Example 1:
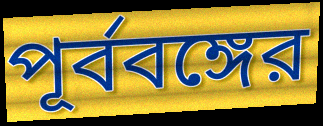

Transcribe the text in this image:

পূর্ববঙ্গের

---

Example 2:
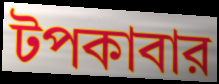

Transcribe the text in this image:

টপকাবার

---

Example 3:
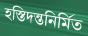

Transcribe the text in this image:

হস্তিদন্তনির্মিত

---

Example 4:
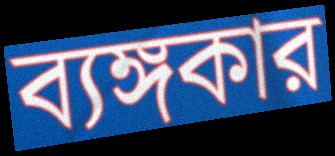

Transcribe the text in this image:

ব্যঙ্গকার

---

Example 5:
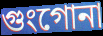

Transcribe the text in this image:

গুংগোনা